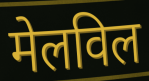
मेलविल